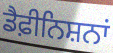
ਡੈਫ਼ੀਨਿਸ਼ਨਾਂ